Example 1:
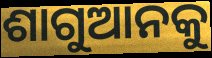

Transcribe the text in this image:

ଶାଗୁଆନକୁ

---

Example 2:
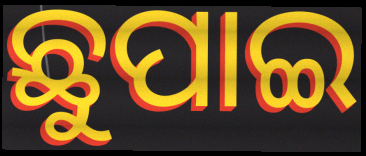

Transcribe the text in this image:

ଛୁପାଇ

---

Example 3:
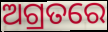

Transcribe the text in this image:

ଅଗ୍ରତରେ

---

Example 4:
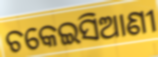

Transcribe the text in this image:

ଚକେଇସିଆଣୀ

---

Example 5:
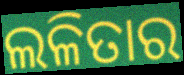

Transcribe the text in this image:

ଲଳିତାର